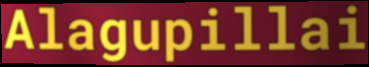
Alagupillai